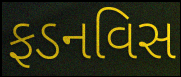
ફડનવિસ